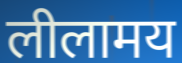
लीलामय